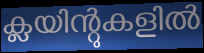
ക്ലയിന്റുകളിൽ